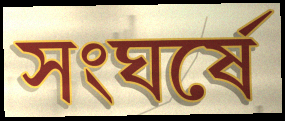
সংঘর্ষে